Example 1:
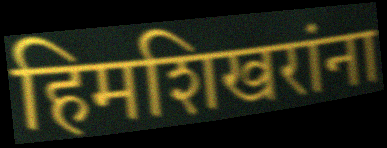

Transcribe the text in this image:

हिमशिखरांना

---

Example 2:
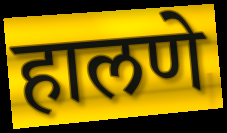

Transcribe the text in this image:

हालणे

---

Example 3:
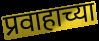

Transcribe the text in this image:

प्रवाहाच्या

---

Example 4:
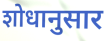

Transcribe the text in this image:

शोधानुसार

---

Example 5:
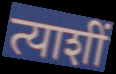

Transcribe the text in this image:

त्याशीं